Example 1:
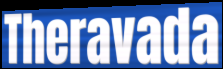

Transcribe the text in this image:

Theravada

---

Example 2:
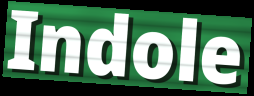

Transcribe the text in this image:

Indole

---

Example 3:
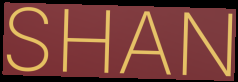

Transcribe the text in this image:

SHAN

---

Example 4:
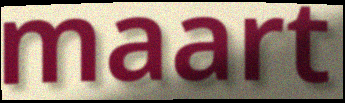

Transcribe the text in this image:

maart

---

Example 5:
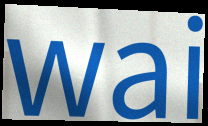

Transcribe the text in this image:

wai